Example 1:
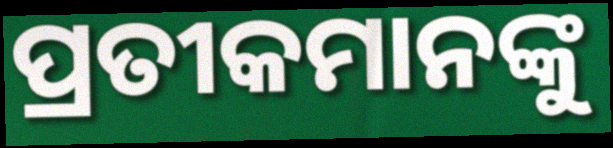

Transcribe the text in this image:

ପ୍ରତୀକମାନଙ୍କୁ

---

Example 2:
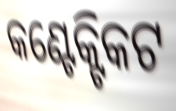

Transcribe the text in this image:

କଣ୍ଟେକ୍ଟିକଟ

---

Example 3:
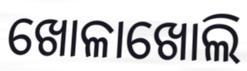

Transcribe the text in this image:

ଖୋଳାଖୋଲି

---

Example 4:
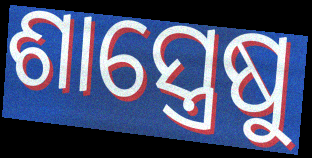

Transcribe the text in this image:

ଶାସ୍ତ୍ରେଷୁ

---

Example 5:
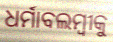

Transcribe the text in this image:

ଧର୍ମାବଲମ୍ବୀକୁ